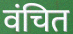
वंचित